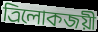
ত্রিলোকজয়ী